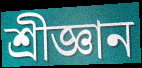
শ্ৰীজ্ঞান